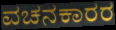
ವಚನಕಾರರ